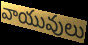
వాయువులు